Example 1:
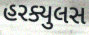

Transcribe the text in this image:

હરક્યુલસ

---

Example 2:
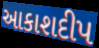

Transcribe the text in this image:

આકાશદીપ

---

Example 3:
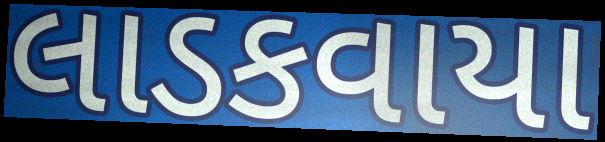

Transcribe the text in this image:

લાડકવાયા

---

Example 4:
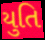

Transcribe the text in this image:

યુતિ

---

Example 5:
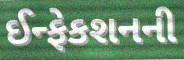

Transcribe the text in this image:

ઈન્ફેકશનની